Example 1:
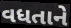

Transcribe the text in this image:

વધતાને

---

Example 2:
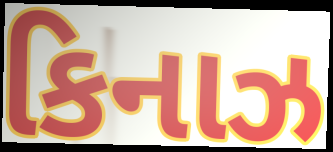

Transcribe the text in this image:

કિનાઝ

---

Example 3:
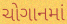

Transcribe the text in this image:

ચોગાનમાં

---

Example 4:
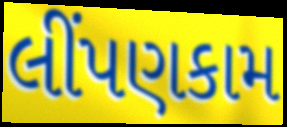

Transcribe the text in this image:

લીંપણકામ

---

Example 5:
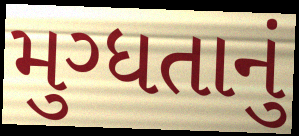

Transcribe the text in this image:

મુગ્ધતાનું